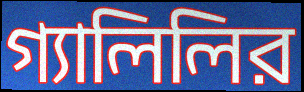
গ্যালিলির